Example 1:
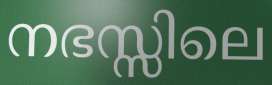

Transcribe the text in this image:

നഭസ്സിലെ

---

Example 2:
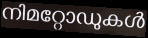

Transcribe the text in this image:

നിമറ്റോഡുകൾ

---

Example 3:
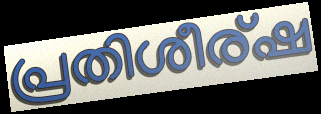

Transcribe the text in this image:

പ്രതിശീര്ഷ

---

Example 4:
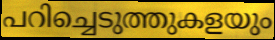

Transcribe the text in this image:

പറിച്ചെടുത്തുകളയും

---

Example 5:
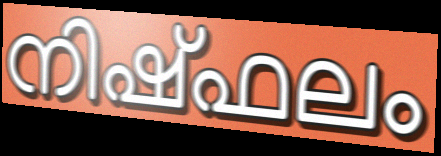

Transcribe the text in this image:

നിഷ്ഫലം